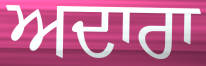
ਅਦਾਰਾ